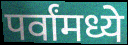
पर्वांमध्ये